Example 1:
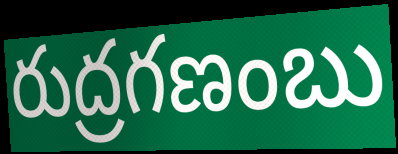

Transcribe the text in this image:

రుద్రగణంబు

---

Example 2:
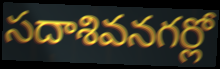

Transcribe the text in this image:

సదాశివనగర్లో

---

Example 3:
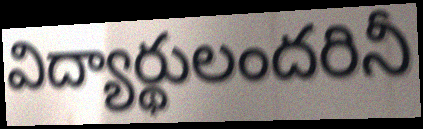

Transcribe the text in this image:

విద్యార్థులందరినీ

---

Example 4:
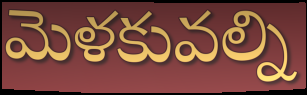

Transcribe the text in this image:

మెళకువల్ని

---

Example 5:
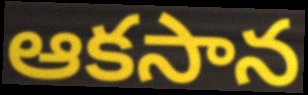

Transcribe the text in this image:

ఆకసాన